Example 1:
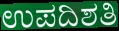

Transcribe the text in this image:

ಉಪದಿಶತಿ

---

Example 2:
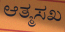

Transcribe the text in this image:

ಆತ್ಮಸಖ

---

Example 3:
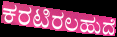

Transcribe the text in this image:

ಕರಟಿರಲಹುದೆ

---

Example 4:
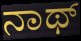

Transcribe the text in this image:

ನಾಥ್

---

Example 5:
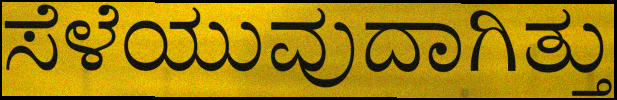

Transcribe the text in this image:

ಸೆಳೆಯುವುದಾಗಿತ್ತು